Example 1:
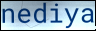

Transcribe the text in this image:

nediya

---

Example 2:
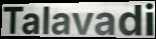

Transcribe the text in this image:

Talavadi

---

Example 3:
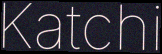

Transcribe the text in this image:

Katchi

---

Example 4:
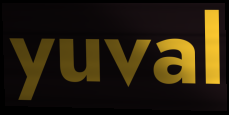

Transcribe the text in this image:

yuval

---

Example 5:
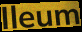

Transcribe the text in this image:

Ileum